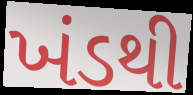
ખંડથી